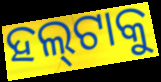
ହଲ୍‌ଟାକୁ